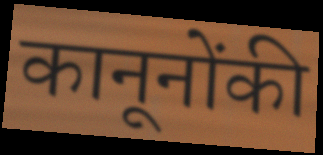
कानूनोंकी